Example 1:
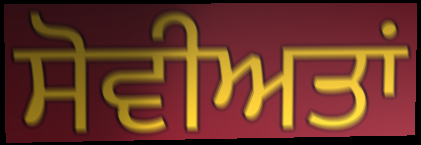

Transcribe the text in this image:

ਸੋਵੀਅਤਾਂ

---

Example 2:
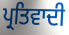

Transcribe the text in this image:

ਪ੍ਰਤਿਵਾਦੀ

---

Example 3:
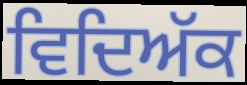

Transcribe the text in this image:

ਵਿਦਿਅੱਕ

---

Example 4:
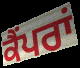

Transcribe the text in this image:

ਕੈਂਪਰਾਂ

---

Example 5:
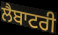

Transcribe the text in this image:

ਲੈਬਾਟਰੀ